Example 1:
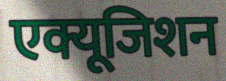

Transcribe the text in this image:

एक्यूजिशन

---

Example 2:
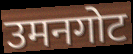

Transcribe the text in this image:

उमनगोट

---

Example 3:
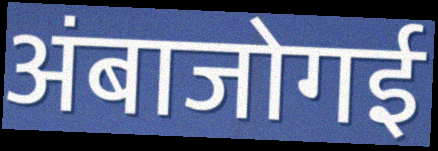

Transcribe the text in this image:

अंबाजोगई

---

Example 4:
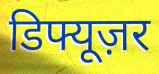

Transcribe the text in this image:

डिफ्यूज़र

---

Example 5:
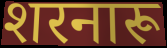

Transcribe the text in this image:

शरनारू